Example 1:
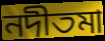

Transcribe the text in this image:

নদীতমা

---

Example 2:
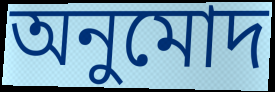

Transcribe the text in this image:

অনুমোদ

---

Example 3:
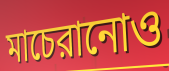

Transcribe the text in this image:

মাচেরানোও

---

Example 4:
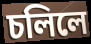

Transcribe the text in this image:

চলিলে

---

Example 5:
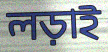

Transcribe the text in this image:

লড়াই